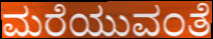
ಮರೆಯುವಂತೆ